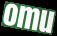
omu